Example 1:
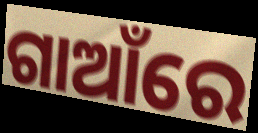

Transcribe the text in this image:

ଗାଆଁରେ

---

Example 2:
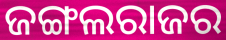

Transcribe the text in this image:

ଜଙ୍ଗଲରାଜର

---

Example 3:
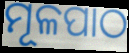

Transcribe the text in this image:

ମୂଳପାଠ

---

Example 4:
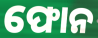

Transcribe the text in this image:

ଫୋନ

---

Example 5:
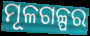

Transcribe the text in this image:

ମୂଳଗଳ୍ପର